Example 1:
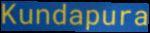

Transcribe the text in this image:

Kundapura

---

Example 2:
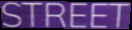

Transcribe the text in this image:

STREET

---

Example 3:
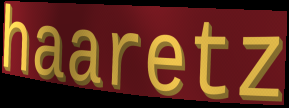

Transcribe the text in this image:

haaretz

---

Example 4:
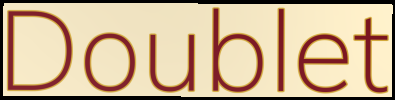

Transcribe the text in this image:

Doublet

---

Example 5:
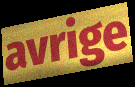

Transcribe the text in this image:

avrige